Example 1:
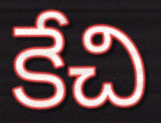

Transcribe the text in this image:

కేచి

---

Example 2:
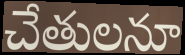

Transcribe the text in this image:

చేతులనూ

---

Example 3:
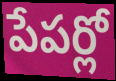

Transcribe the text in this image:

పేపర్లో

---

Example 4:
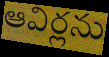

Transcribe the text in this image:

ఆవిర్లను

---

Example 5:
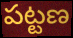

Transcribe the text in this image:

పట్టణ